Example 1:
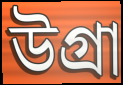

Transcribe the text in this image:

উগ্রা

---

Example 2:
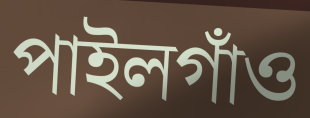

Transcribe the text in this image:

পাইলগাঁও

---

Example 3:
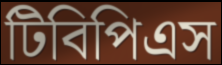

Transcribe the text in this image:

টিবিপিএস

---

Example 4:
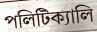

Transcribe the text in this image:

পলিটিক্যালি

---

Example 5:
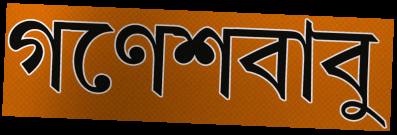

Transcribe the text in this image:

গণেশবাবু